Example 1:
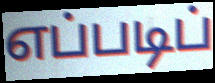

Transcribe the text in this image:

எப்படிப்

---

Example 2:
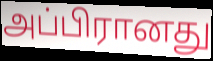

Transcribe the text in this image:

அப்பிரானது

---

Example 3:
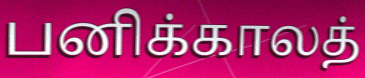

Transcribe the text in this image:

பனிக்காலத்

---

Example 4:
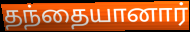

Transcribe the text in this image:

தந்தையானார்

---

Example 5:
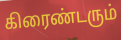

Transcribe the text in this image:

கிரைண்டரும்